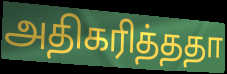
அதிகரித்ததா